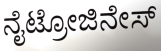
ನೈಟ್ರೋಜಿನೇಸ್